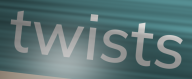
twists